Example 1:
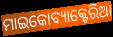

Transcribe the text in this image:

ମାଇକୋବ୍ୟାକ୍ଟେରିଆ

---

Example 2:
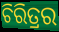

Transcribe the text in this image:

ଚିରିତ୍ରର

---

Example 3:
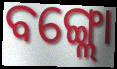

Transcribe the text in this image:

ବଙ୍ଗ୍ଲୋ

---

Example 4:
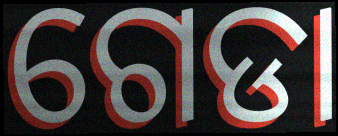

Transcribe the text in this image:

ଗେଡା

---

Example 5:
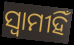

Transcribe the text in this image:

ସ୍ଵାମୀହିଁ